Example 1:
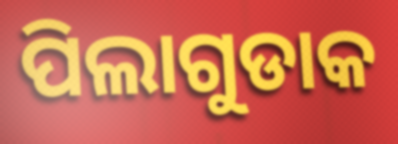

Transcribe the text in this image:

ପିଲାଗୁଡାକ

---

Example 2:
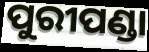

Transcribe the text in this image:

ପୁରୀପଣ୍ଡା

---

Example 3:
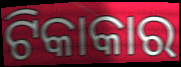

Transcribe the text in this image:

ଟିକାକାର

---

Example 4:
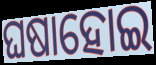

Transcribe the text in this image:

ଘଷାହୋଇ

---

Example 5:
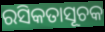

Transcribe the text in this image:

ରସିକତାସୂଚକ